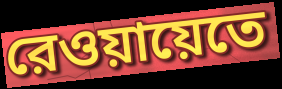
রেওয়ায়েতে